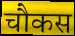
चौकस